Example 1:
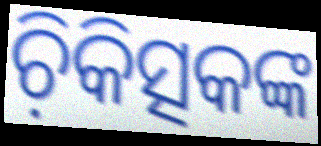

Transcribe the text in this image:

ଚ଼ିକିତ୍ସକଙ୍କ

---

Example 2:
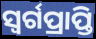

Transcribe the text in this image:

ସ୍ଵର୍ଗପ୍ରାପ୍ତି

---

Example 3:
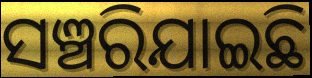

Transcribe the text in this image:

ସଞ୍ଚରିଯାଇଛି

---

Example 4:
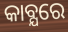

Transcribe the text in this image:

କାବ୍ଯରେ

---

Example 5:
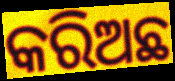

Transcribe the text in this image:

କରିଅଛ